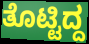
ತೊಟ್ಟಿದ್ದ